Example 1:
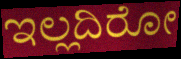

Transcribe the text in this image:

ಇಲ್ಲದಿರೋ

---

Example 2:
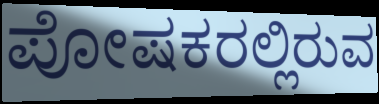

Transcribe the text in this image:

ಪೋಷಕರಲ್ಲಿರುವ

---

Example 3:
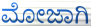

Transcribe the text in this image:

ಮೋಜಾಗಿ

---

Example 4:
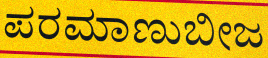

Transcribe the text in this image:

ಪರಮಾಣುಬೀಜ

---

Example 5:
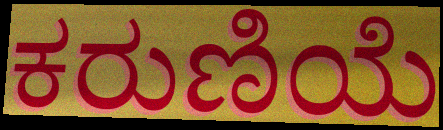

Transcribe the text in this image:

ಕರುಣಿಯೆ